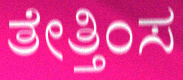
ತೇತ್ತಿಂಸ